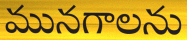
మునగాలను